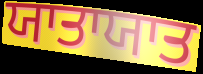
ਯਾਤਾਯਾਤ